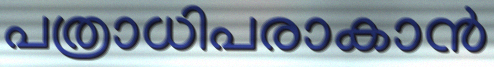
പത്രാധിപരാകാൻ